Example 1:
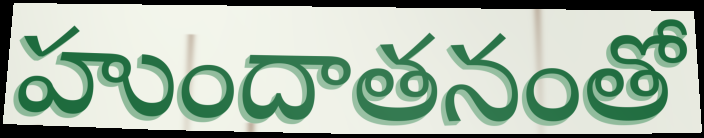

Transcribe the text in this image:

హుందాతనంతో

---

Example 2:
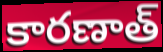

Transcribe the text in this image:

కారణాత్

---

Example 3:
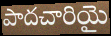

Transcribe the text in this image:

పాదచారియై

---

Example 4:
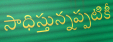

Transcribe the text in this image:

సాధిస్తున్నప్పటికీ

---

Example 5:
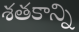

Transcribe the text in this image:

శతకాన్ని